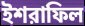
ইশরাফিল